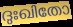
ദുഃഖിതോ